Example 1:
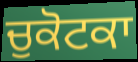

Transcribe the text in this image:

ਚੁਕੋਟਕਾ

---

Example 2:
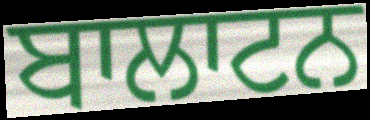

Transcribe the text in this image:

ਬਾਲਾਟਨ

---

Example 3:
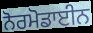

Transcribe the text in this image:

ਨੋਰਮੋਡਾਈਨ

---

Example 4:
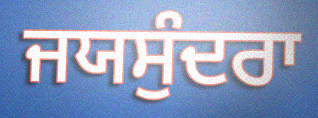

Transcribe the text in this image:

ਜਯਸੁੰਦਰਾ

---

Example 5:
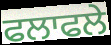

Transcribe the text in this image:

ਫਲਾਫਲੇ